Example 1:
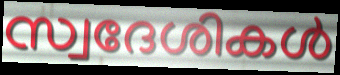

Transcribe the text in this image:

സ്വദേശികൾ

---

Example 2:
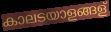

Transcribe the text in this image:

കാലടയാളങ്ങള്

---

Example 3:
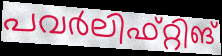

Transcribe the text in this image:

പവർലിഫ്റ്റിങ്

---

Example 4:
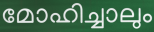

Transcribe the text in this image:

മോഹിച്ചാലും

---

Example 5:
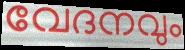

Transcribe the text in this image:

വേദനവും